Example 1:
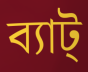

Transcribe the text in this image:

ব্যাট্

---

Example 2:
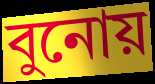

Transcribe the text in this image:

বুনোয়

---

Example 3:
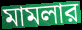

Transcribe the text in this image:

মামলার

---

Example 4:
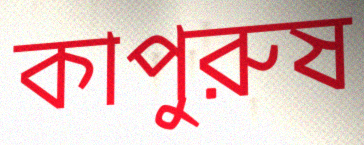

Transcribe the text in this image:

কাপুরুষ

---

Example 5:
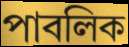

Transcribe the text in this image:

পাবলিক